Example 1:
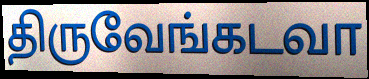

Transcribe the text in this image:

திருவேங்கடவா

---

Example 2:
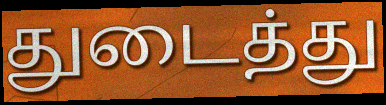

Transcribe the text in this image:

துடைத்து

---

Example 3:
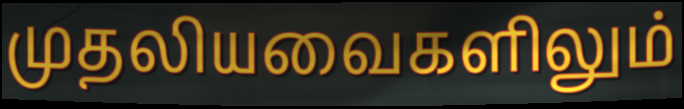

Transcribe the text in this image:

முதலியவைகளிலும்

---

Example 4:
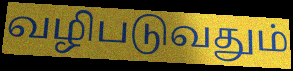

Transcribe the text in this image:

வழிபடுவதும்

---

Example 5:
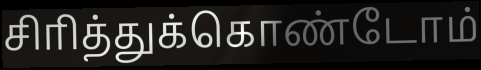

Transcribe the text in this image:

சிரித்துக்கொண்டோம்